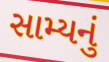
સામ્યનું